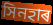
সিনহাৰ